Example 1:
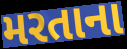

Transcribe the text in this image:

મરતાના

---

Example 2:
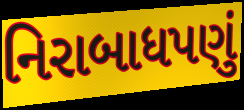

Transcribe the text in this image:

નિરાબાધપણું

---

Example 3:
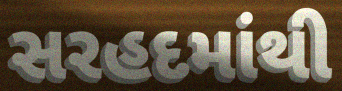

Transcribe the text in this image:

સરહદમાંથી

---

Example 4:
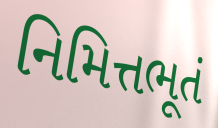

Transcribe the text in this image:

નિમિત્તભૂતં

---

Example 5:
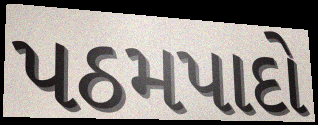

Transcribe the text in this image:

પઠમપાદો